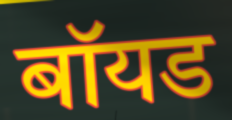
बॉयड